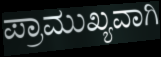
ಪ್ರಾಮುಖ್ಯವಾಗಿ